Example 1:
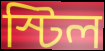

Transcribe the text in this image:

স্টিল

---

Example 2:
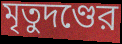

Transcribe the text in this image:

মৃতুদণ্ডের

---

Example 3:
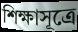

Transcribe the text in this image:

শিক্ষাসূত্রে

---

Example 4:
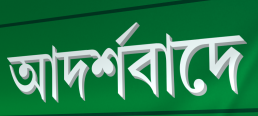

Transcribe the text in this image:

আদর্শবাদে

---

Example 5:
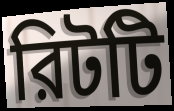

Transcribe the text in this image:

রিটটি